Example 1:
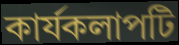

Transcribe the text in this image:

কার্যকলাপটি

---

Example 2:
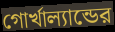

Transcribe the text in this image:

গোর্খাল্যান্ডের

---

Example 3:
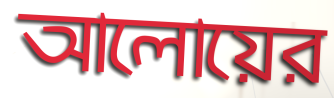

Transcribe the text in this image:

আলোয়ের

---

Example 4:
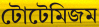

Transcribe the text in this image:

টোটেমিজম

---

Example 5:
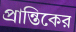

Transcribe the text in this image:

প্রান্তিকের